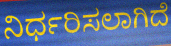
ನಿರ್ಧರಿಸಲಾಗಿದೆ